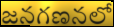
జనగణనలో